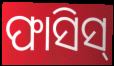
ଫାସିସ୍